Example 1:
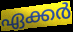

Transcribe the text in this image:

ഏക്കർ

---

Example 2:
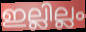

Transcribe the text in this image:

ഇല്ലില്ലം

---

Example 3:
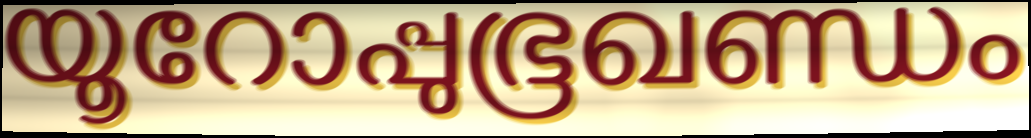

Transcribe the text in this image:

യൂറോപ്പുഭൂഖണ്ഡം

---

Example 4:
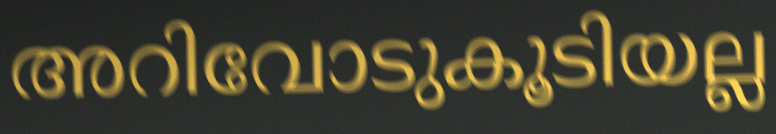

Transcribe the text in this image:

അറിവോടുകൂടിയല്ല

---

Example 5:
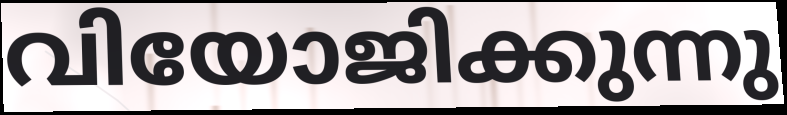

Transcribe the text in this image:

വിയോജിക്കുന്നു